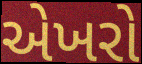
એખરો